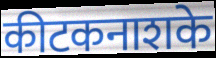
कीटकनाशके